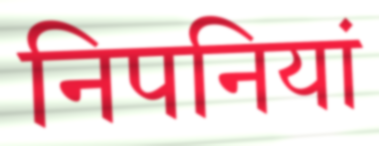
निपनियां